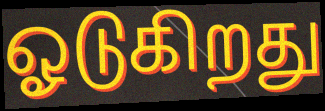
ஓடுகிறது